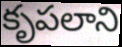
కృపలాని